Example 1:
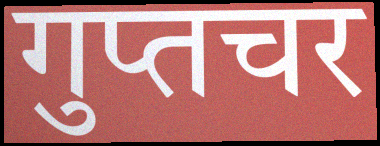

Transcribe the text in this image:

गुप्तचर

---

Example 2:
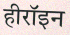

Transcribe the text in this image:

हीरॉइन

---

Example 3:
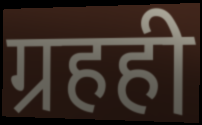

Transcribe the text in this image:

ग्रहही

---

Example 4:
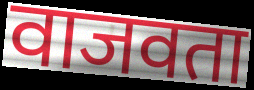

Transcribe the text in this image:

वाजवता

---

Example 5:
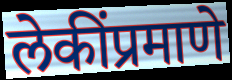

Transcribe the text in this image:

लेकींप्रमाणे